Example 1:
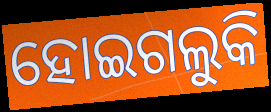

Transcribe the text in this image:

ହୋଇଗଲୁକି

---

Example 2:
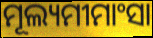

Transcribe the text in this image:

ମୂଲ୍ୟମୀମାଂସା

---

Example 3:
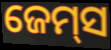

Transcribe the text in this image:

ଜେମ୍‍ସ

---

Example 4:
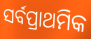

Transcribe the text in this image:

ସର୍ବପ୍ରାଥମିକ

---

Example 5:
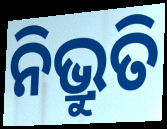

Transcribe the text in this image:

ନିଭ୍ରୁତି